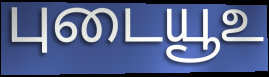
புடையூஉ